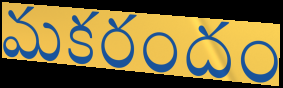
మకరందం